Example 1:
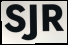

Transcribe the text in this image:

SJR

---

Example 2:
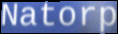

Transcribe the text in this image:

Natorp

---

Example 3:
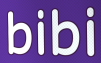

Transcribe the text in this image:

bibi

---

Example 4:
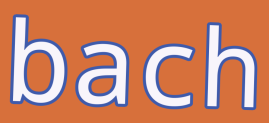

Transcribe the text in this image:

bach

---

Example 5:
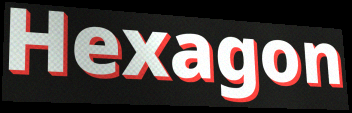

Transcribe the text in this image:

Hexagon